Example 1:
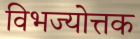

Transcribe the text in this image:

विभज्योत्तक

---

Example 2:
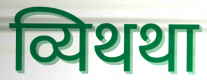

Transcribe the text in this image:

व्यिथथा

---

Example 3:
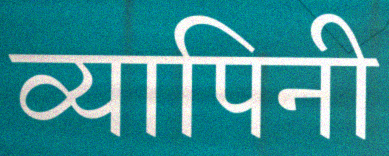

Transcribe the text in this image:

व्यापिनी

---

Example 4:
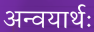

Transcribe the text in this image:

अन्वयार्थः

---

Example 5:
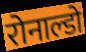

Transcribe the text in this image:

रोनाल्डो